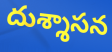
దుశ్శాసన